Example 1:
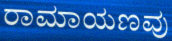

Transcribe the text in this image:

ರಾಮಾಯಣವು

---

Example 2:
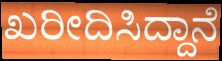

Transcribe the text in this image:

ಖರೀದಿಸಿದ್ದಾನೆ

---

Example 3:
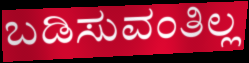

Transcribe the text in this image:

ಬಡಿಸುವಂತಿಲ್ಲ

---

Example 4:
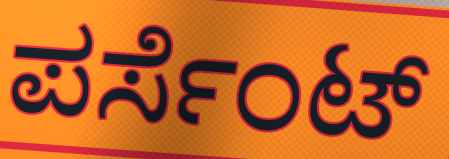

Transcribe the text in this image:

ಪರ್ಸೆಂಟ್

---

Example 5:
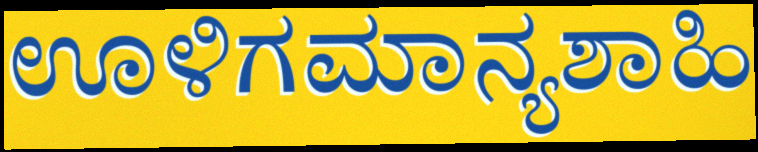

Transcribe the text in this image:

ಊಳಿಗಮಾನ್ಯಶಾಹಿ